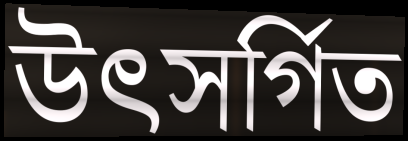
উৎসর্গিত